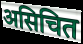
असिचित